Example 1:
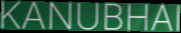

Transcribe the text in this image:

KANUBHAI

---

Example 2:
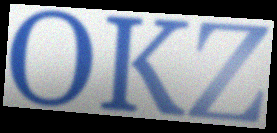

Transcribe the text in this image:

OKZ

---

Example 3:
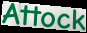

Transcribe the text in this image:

Attock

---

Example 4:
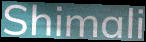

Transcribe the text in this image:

Shimali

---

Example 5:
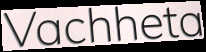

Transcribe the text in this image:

Vachheta